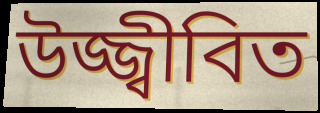
উজ্জ্বীবিত